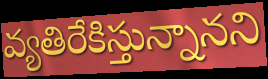
వ్యతిరేకిస్తున్నానని